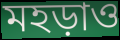
মহড়াও